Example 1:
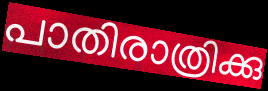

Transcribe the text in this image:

പാതിരാത്രിക്കു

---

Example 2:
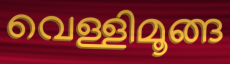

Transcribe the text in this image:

വെള്ളിമൂങ്ങ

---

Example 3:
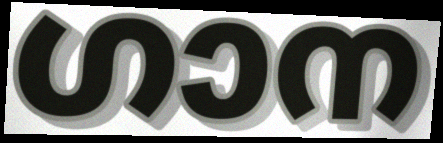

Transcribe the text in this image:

ഗാന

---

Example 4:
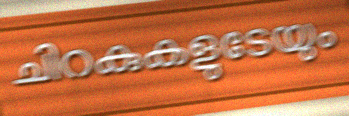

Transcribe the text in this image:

ചിറകുകളുടേയും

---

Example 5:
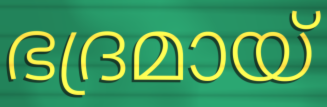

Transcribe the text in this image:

ഭദ്രമായ്